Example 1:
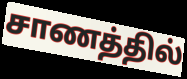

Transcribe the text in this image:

சாணத்தில்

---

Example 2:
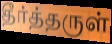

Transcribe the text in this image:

தீர்த்தருள்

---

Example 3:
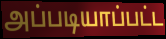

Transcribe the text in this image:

அப்படியாப்பட்ட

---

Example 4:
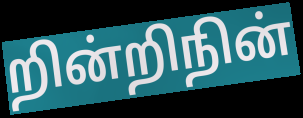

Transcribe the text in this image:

றின்றிநின்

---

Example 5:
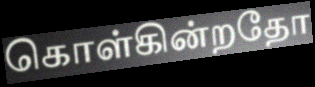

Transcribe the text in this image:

கொள்கின்றதோ